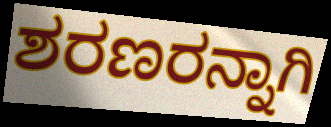
ಶರಣರನ್ನಾಗಿ